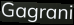
Gagrani